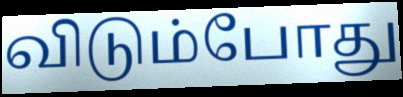
விடும்போது